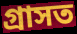
গ্ৰাসত